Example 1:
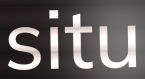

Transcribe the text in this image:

situ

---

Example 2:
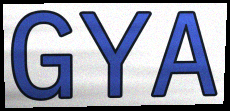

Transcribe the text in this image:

GYA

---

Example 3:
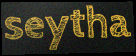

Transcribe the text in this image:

seytha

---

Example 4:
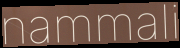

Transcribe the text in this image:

nammali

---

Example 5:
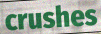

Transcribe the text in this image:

crushes